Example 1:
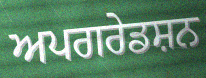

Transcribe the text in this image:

ਅਪਗਰੇਡਸ਼ਨ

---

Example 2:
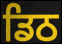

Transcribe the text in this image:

ਡਿਠ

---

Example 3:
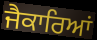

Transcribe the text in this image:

ਜੈਕਾਰਿਆਂ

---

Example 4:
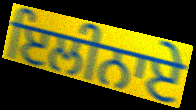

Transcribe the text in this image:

ਇਲੀਨਾਏ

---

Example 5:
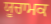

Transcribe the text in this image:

ਯੂਚਾਮਕ